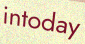
intoday